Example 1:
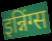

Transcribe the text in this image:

इन्निंग्स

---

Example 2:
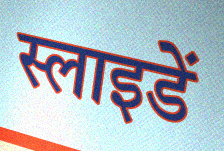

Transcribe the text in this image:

स्लाइडें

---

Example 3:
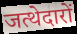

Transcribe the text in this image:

जत्थेदारों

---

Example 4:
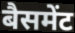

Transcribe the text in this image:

बैसमेंट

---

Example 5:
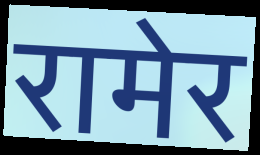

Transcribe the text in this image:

रामेर